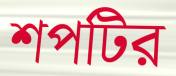
শপটির